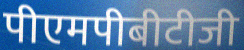
पीएमपीबीटीजी